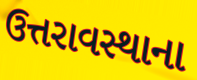
ઉત્તરાવસ્થાના